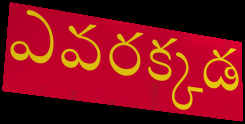
ఎవరక్కడ